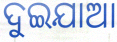
ଦୁଇଯାଆ